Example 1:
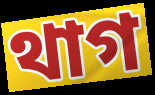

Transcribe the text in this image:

থাগ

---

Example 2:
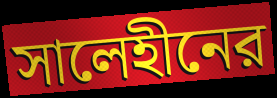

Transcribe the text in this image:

সালেহীনের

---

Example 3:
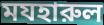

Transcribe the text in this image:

মযহারুল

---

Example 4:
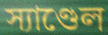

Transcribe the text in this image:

স্যাণ্ডেল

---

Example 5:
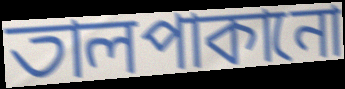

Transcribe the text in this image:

তালপাকানো